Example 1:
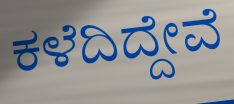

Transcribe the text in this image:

ಕಳೆದಿದ್ದೇವೆ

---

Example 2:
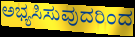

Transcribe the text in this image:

ಅಭ್ಯಸಿಸುವುದರಿಂದ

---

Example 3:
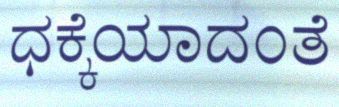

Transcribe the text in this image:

ಧಕ್ಕೆಯಾದಂತೆ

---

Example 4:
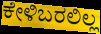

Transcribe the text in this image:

ಕೇಳಿಬರಲಿಲ್ಲ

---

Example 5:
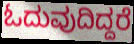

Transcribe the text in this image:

ಓದುವುದಿದ್ದರೆ